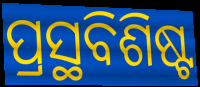
ପ୍ରସ୍ଥବିଶିଷ୍ଟ